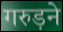
गरुड़ने